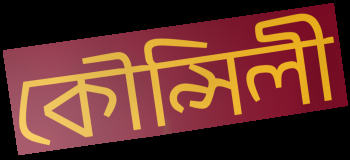
কৌন্সিলী